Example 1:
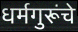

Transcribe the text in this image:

धर्मगुरूंचे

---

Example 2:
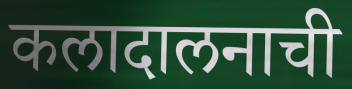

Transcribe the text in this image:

कलादालनाची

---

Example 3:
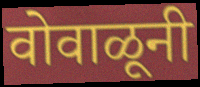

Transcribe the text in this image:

वोवाळूनी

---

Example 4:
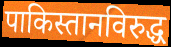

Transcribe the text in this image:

पाकिस्तानविरुद्ध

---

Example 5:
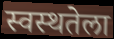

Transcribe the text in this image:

स्वस्थतेला